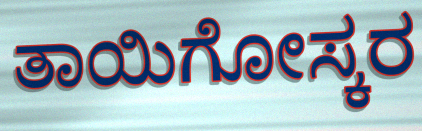
ತಾಯಿಗೋಸ್ಕರ